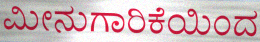
ಮೀನುಗಾರಿಕೆಯಿಂದ